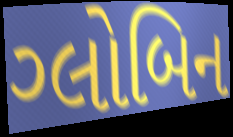
ગ્લોબિન